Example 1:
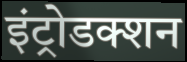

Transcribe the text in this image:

इंट्रोडक्शन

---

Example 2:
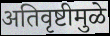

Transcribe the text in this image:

अतिवृष्टीमुळे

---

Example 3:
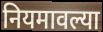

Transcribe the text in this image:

नियमावल्या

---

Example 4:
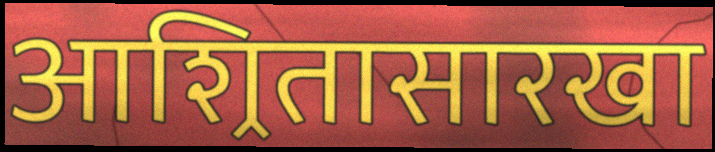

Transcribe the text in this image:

आश्रितासारखा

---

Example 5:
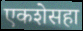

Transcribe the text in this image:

एकशेसहा